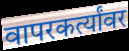
वापरकर्त्यांवर